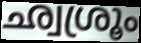
ഛ്വശ്രൂം